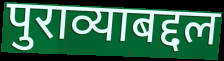
पुराव्याबद्दल